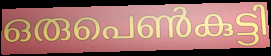
ഒരുപെൺകുട്ടി